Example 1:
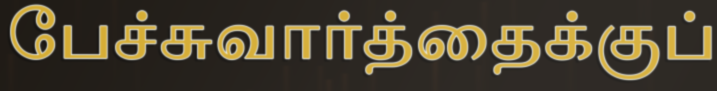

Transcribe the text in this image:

பேச்சுவார்த்தைக்குப்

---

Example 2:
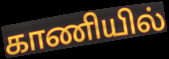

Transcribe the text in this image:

காணியில்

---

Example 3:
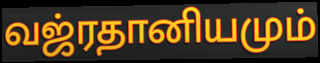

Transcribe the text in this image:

வஜ்ரதானியமும்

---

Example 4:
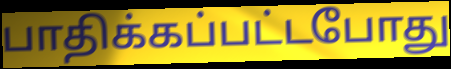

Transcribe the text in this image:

பாதிக்கப்பட்டபோது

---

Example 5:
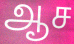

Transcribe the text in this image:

ஆச